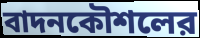
বাদনকৌশলের